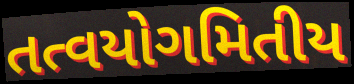
તત્વયોગમિતીય